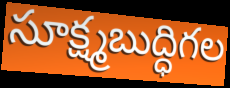
సూక్ష్మబుద్ధిగల